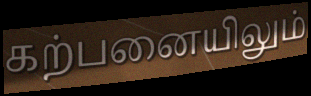
கற்பனையிலும்